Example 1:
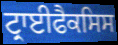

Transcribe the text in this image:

ਟ੍ਰਾਈਫੈਕਸਿਸ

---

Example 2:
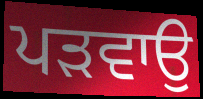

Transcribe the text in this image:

ਪੜਵਾਉ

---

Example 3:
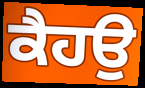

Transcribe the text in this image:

ਕੈਹਉ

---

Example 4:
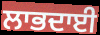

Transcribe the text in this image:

ਲਾਭਦਾਈ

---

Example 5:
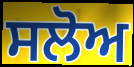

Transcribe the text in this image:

ਸਲੋਅ